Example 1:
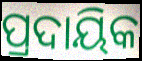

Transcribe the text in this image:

ପ୍ରଦାୟିକ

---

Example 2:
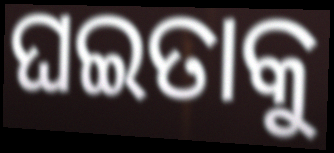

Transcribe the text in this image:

ଘଇତାକୁ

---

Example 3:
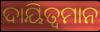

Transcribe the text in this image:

ଦାୟିତ୍ୱମାନ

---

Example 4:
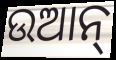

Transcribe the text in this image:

ଉଆନ୍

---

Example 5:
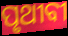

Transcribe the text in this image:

ପୃଥୀବୀ